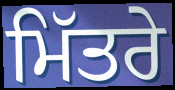
ਮਿੱਤਰੇ